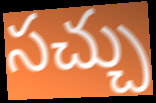
సచ్చు